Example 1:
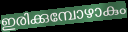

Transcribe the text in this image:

ഇരിക്കുമ്പോഴാകും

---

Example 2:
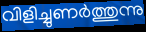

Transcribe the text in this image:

വിളിച്ചുണർത്തുന്നു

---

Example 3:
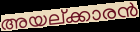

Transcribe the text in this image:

അയല്ക്കാരൻ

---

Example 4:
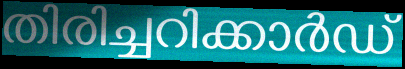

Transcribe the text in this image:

തിരിച്ചറിക്കാർഡ്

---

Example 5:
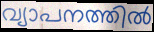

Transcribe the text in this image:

വ്യാപനത്തിൽ